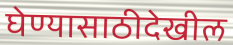
घेण्यासाठीदेखील